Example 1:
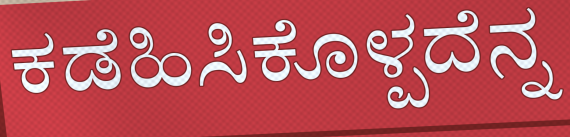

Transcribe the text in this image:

ಕಡೆಹಿಸಿಕೊಳ್ಪದೆನ್ನ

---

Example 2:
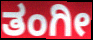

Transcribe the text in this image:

ತಂಗೀ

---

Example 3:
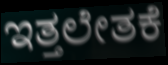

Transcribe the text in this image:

ಇತ್ತಲೇತಕೆ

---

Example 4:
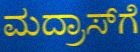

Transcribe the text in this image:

ಮದ್ರಾಸ್‍ಗೆ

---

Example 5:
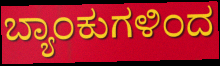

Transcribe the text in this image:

ಬ್ಯಾಂಕುಗಳಿಂದ